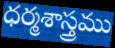
ధర్మశాస్త్రము